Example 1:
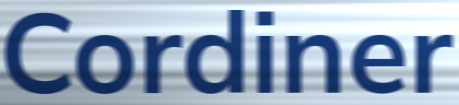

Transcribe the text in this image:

Cordiner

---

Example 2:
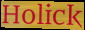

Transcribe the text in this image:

Holick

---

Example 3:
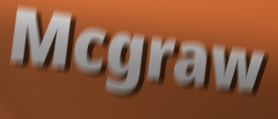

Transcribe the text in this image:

Mcgraw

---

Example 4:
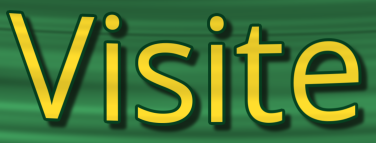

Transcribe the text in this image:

Visite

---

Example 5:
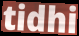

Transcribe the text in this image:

tidhi